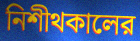
নিশীথকালের